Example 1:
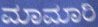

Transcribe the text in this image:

ಮಾಮಾರಿ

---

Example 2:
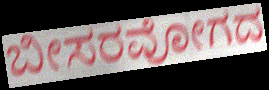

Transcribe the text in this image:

ಬೀಸರವೋಗದ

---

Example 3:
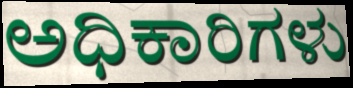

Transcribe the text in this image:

ಅಧಿಕಾರಿಗಳು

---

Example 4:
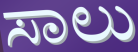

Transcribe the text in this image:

ಸಾಲು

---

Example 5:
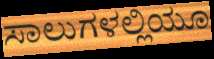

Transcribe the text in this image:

ಸಾಲುಗಳಲ್ಲಿಯೂ